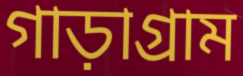
গাড়াগ্রাম